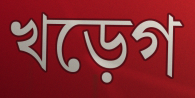
খড়েগ